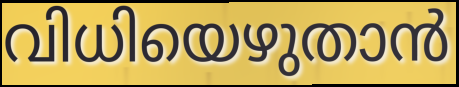
വിധിയെഴുതാൻ